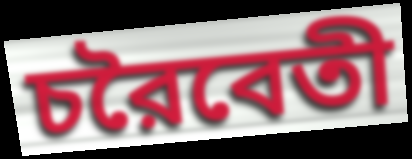
চরৈবেতী